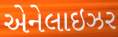
એનેલાઇઝર